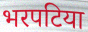
भरपटिया